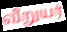
வீறுயர்